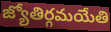
జ్యోతిర్గమయేతి